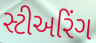
સ્ટીઅરિંગ